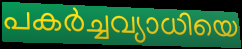
പകർച്ചവ്യാധിയെ